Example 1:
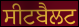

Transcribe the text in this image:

ਸੀਟਬੈਲਟ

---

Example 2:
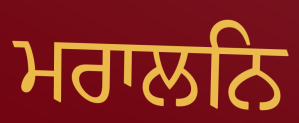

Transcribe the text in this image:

ਮਰਾਲਨਿ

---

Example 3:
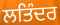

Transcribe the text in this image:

ਲਤਿੰਦਰ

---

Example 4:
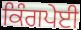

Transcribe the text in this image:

ਕਿੰਗਪੇਈ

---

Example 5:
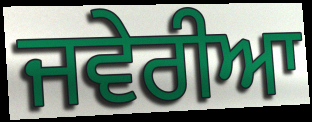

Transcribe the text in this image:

ਜਵੇਰੀਆ